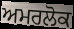
ਅਮਰਲੋਕ